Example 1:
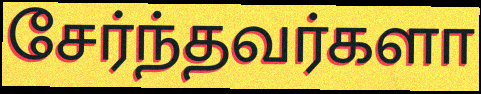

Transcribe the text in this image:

சேர்ந்தவர்களா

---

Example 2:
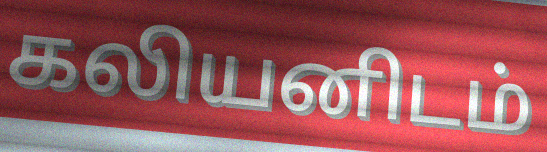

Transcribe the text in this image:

கலியனிடம்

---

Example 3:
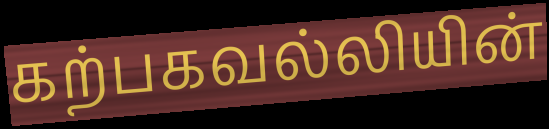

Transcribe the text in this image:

கற்பகவல்லியின்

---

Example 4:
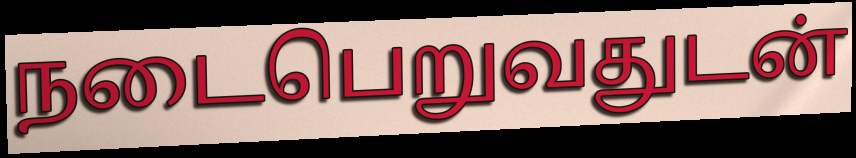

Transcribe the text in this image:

நடைபெறுவதுடன்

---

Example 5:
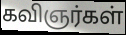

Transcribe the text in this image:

கவிஞர்கள்